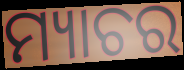
ମ୍ୟାଚର